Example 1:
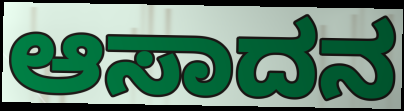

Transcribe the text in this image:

ಆಸಾದನ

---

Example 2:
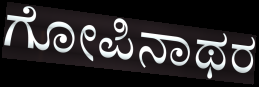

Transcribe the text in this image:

ಗೋಪಿನಾಥರ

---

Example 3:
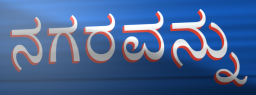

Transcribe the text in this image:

ನಗರವನ್ನು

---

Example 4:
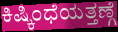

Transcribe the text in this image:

ಕಿಷ್ಕಿಂಧೆಯತ್ತಣ್ಗೆ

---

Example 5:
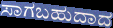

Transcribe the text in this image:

ಸಾಗಬಹುದಾದ